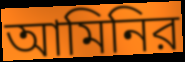
আমিনির